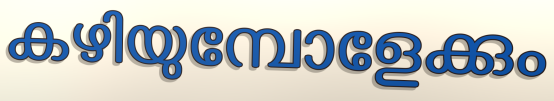
കഴിയുമ്പോളേക്കും